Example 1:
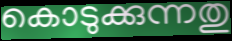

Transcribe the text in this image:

കൊടുക്കുന്നതു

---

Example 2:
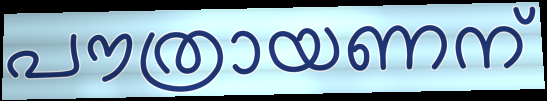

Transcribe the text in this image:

പൗത്രായണന്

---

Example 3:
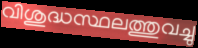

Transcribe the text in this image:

വിശുദ്ധസ്ഥലത്തുവച്ചു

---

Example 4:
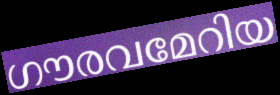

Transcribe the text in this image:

ഗൗരവമേറിയ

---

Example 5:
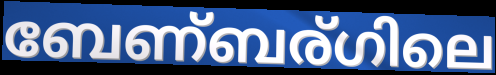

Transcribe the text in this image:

ബേണ്ബര്ഗിലെ